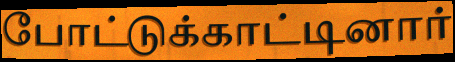
போட்டுக்காட்டினார்